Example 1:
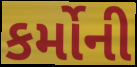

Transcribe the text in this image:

કર્મોની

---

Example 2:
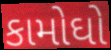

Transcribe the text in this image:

કામોઘો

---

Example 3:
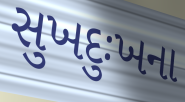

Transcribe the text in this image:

સુખદુઃખના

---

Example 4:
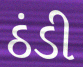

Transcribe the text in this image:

ઠંડી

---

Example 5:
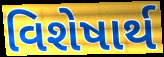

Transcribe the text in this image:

વિશેષાર્થ